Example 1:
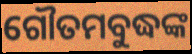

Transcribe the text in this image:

ଗୌତମବୁଦ୍ଧଙ୍କ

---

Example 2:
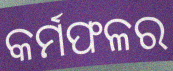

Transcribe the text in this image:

କର୍ମଫଳର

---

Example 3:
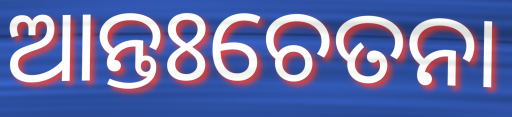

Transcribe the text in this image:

ଆନ୍ତଃଚେତନା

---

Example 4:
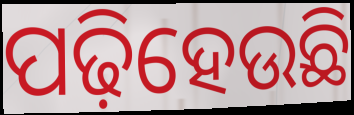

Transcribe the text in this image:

ପଢ଼ିହେଉଛି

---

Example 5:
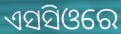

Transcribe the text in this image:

ଏସସିଓରେ